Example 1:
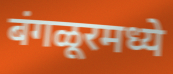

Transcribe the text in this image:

बंगळूरमध्ये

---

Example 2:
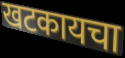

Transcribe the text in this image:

खटकायचा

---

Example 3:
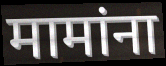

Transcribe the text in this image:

मामांना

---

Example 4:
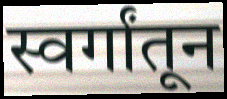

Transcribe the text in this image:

स्वर्गांतून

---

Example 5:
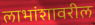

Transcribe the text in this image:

लाभांशावरील